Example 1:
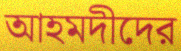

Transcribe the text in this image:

আহমদীদের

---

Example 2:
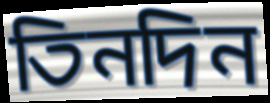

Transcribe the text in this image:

তিনদিন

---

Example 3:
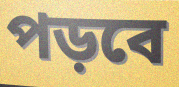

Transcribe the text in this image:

পড়বে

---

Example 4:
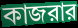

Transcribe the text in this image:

কাজরার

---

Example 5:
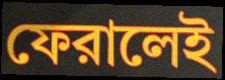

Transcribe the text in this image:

ফেরালেই